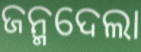
ଜନ୍ମଦେଲା